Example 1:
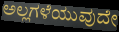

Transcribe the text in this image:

ಅಲ್ಲಗಳೆಯುವುದೇ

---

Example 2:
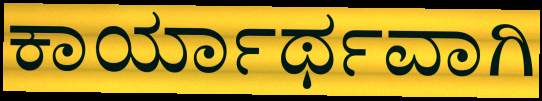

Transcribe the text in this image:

ಕಾರ್ಯಾರ್ಥವಾಗಿ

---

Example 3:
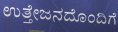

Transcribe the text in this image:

ಉತ್ತೇಜನದೊಂದಿಗೆ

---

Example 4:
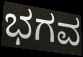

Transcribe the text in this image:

ಭಗವ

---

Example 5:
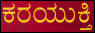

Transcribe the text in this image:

ಕರಯುಕ್ತಿ